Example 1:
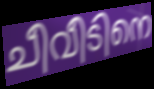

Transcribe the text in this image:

ചീവീടിനെ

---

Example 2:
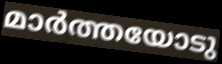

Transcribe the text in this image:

മാർത്തയോടു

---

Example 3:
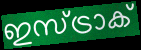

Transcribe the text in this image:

ഇസ്ട്രാക്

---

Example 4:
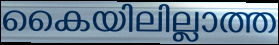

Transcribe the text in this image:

കൈയിലില്ലാത്ത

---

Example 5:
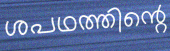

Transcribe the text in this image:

ശപഥത്തിന്റെ